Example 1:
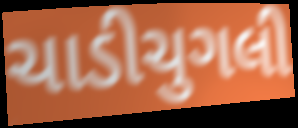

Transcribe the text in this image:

ચાડીચુગલી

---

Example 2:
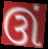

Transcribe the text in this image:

ઊં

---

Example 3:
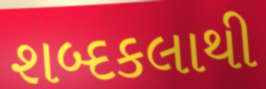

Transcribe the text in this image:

શબ્દકલાથી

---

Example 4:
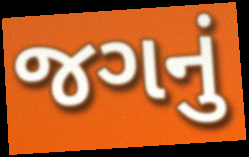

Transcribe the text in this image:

જગનું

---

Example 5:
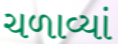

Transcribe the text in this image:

ચળાવ્યાં